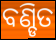
ବଣ୍ଡିତ